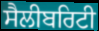
ਸੈਲੀਬਰਿਟੀ